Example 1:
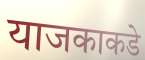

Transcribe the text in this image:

याजकाकडे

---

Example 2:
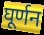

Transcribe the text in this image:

घूर्णन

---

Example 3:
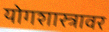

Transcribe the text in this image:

योगशास्त्रावर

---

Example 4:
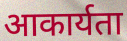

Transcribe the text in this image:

आकार्यता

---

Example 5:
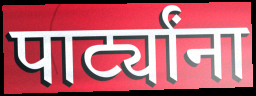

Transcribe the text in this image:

पार्ट्यांना